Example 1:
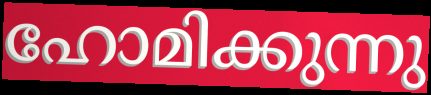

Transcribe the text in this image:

ഹോമിക്കുന്നു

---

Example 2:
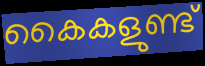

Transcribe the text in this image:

കൈകളുണ്ട്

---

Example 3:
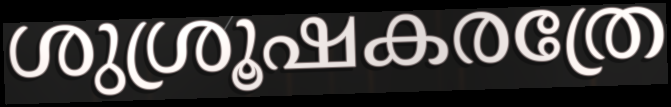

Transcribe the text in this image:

ശുശ്രൂഷകരത്രേ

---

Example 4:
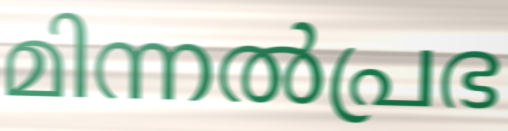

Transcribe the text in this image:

മിന്നൽപ്രഭ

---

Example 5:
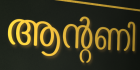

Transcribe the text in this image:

ആന്റണി